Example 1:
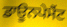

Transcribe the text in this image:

ਡਾਊਨਪੇਮੈਂਟ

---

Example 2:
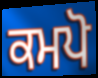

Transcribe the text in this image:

ਕਮਪੋ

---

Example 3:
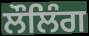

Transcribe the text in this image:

ਲੌਲਿੰਗ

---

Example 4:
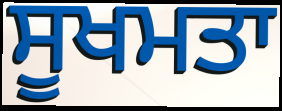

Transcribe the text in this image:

ਸੂਖਮਤਾ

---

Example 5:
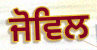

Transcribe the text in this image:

ਜੋਵਿਲ